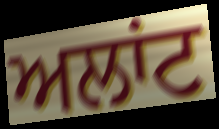
ਅਲਾਂਟ